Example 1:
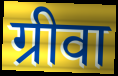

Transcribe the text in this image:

ग्रीवा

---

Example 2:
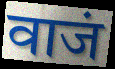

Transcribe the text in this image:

वाजं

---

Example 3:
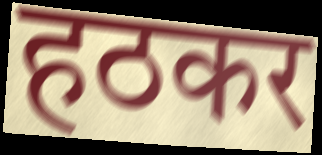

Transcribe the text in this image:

हठकर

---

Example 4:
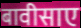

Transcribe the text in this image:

बावीसाए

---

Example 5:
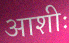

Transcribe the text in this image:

आशीः